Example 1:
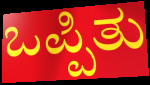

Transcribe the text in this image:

ಒಪ್ಪಿತು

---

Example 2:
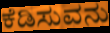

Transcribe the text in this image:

ಕೆಡಿಸುವನು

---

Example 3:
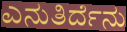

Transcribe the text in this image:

ಎನುತಿರ್ದೆನು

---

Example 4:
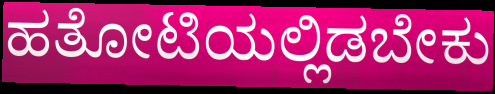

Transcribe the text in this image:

ಹತೋಟಿಯಲ್ಲಿಡಬೇಕು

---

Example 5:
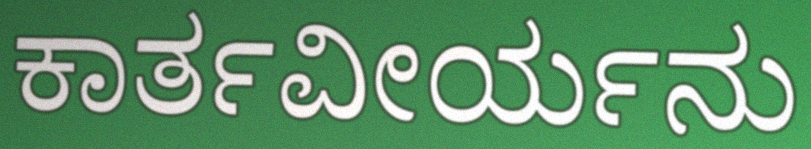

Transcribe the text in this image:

ಕಾರ್ತವೀರ್ಯನು